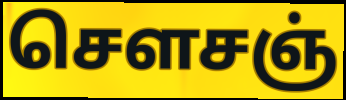
செளசஞ்